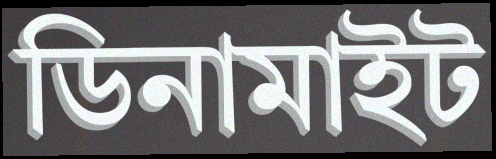
ডিনামাইট